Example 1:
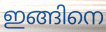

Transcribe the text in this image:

ഇങ്ങിനെ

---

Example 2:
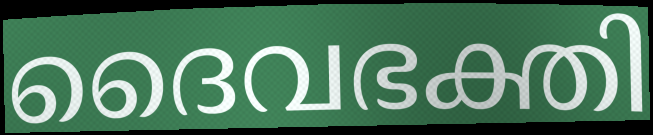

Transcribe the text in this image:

ദൈവഭക്തി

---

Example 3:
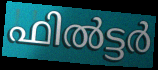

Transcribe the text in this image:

ഫിൽട്ടർ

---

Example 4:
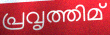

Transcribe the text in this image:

പ്രവൃത്തിമ്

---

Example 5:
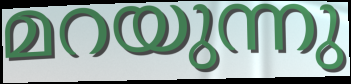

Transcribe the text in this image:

മറയുന്നു